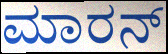
ಮಾರನ್